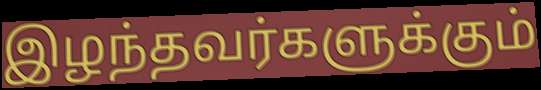
இழந்தவர்களுக்கும்